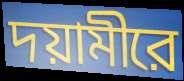
দয়ামীরে